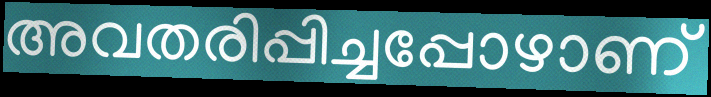
അവതരിപ്പിച്ചപ്പോഴാണ്